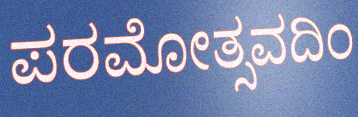
ಪರಮೋತ್ಸವದಿಂ